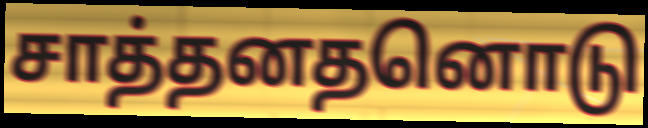
சாத்தனதனொடு